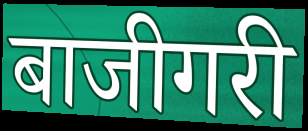
बाजीगरी